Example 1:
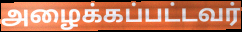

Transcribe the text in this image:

அழைக்கப்பட்டவர்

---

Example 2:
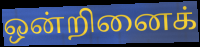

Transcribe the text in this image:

ஒன்றினைக்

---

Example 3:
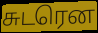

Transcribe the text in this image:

சுடரென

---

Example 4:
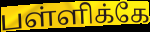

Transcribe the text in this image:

பள்ளிக்கே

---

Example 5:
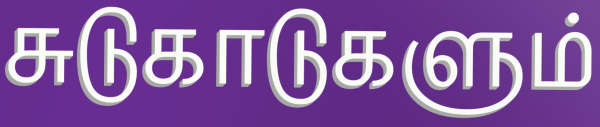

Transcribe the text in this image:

சுடுகாடுகளும்